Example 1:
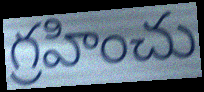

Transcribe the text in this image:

గ్రహించు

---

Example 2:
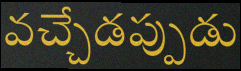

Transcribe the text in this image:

వచ్చేడప్పుడు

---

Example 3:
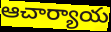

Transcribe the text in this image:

ఆచార్యాయ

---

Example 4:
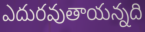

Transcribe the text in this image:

ఎదురవుతాయన్నది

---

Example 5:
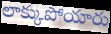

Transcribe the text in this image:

లాక్కుపోయారు